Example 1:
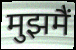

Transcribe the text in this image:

मुझमैं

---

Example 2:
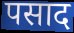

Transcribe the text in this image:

पसाद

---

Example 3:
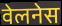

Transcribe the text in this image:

वेलनेस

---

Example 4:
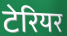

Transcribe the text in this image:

टेरियर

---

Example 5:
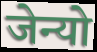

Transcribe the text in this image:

जेन्यो